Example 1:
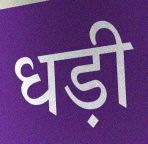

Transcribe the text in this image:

धड़ी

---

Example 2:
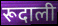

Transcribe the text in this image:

रूदाली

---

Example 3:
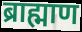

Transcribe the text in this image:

ब्राह्माण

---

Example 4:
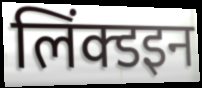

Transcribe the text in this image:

लिंक्‍डइन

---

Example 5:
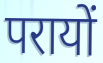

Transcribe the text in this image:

परायों